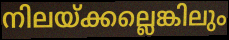
നിലയ്ക്കല്ലെങ്കിലും